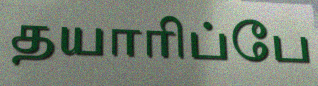
தயாரிப்பே